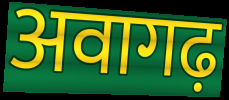
अवागढ़